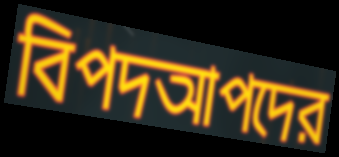
বিপদআপদের